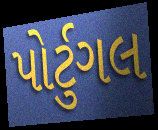
પોર્ટુગલ